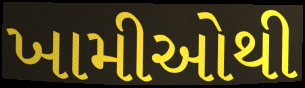
ખામીઓથી